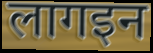
लागइन